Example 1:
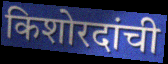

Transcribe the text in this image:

किशोरदांची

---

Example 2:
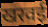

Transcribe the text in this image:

खरवई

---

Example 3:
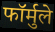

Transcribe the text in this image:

फॉर्मुले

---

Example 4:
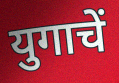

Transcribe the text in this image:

युगाचें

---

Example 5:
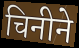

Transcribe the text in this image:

चिनीने